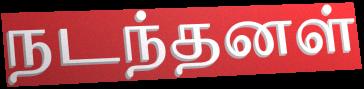
நடந்தனள்